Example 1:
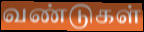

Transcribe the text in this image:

வண்டுகள்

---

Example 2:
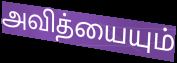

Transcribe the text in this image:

அவித்யையும்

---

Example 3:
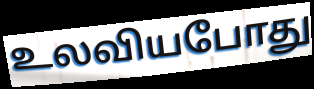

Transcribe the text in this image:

உலவியபோது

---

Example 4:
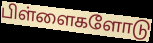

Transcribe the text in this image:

பிள்ளைகளோடு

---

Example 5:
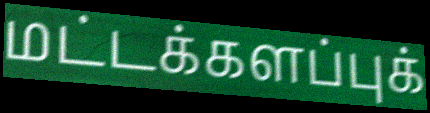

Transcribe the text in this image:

மட்டக்களப்புக்